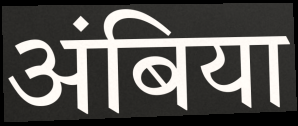
अंबिया